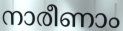
നാരീണാം